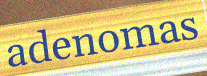
adenomas